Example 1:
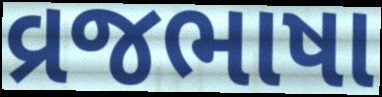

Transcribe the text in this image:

વ્રજભાષા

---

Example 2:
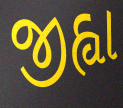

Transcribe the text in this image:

જીહ્વા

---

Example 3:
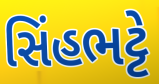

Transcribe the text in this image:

સિંહભટ્ટે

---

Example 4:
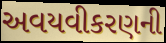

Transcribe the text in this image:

અવયવીકરણની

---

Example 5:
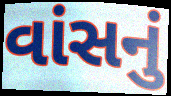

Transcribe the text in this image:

વાંસનું